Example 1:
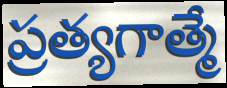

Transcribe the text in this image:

ప్రత్యగాత్మే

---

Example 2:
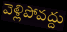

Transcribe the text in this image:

వెళ్లిపోవద్దు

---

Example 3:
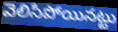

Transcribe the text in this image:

వెలిసిపోయినట్టు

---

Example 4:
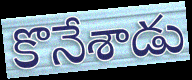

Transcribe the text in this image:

కొనేశాడు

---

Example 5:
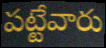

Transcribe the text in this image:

పట్టేవారు